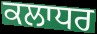
ਕਲਾਧਰ